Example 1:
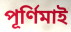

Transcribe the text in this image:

পূৰ্ণিমাই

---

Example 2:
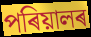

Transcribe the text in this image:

পৰিয়ালৰ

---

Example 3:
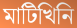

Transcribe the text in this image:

মাটিখিনি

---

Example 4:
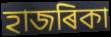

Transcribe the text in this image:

হাজৰিকা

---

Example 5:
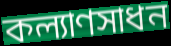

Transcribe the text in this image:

কল্যাণসাধন